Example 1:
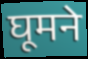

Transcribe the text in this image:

घूमने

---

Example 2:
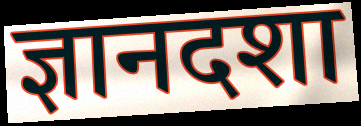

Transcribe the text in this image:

ज्ञानदशा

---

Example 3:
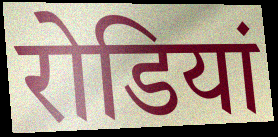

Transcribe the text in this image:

रोडियां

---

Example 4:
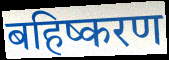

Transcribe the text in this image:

बहिष्करण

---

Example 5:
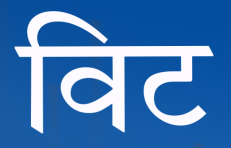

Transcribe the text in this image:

विट